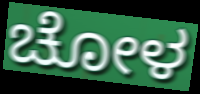
ಚೋಳ